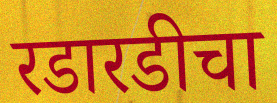
रडारडीचा